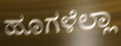
ಹೂಗಳೆಲ್ಲಾ